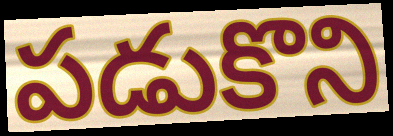
పడుకొని